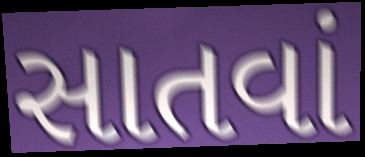
સાતવાં